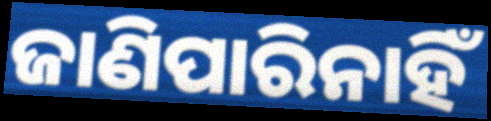
ଜାଣିପାରିନାହିଁ